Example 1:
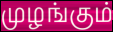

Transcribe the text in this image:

முழங்கும்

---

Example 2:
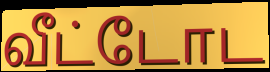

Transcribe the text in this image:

வீட்டோட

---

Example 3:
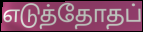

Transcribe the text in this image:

எடுத்தோதப்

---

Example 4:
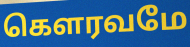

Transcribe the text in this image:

கௌரவமே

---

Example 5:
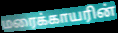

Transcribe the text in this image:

மரைக்காயரின்